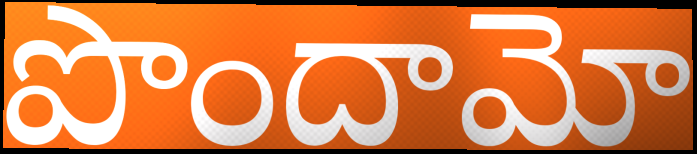
పొందామో